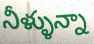
నీళ్ళున్నా